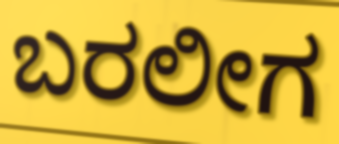
ಬರಲೀಗ